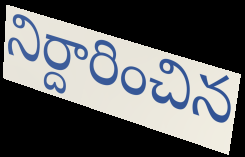
నిర్దారించిన